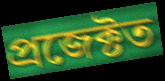
প্ৰজেক্টত